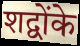
शद्वोंके